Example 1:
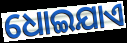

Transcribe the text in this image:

ଧୋଇଯାଏ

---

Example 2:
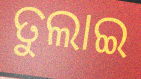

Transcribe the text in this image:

ତୁଲାଇ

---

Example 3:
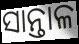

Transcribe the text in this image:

ସାନ୍ତାଳ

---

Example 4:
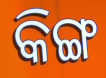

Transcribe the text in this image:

କିଙ୍ଗ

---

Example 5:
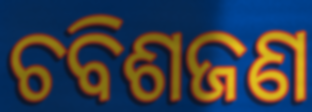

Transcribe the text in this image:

ଚବିଶଜଣ